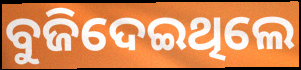
ବୁଜିଦେଇଥିଲେ